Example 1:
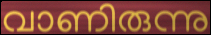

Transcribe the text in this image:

വാണിരുന്നു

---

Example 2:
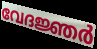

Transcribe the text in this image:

വേദജ്ഞർ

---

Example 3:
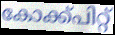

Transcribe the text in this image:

കോക്ക്പിറ്റ്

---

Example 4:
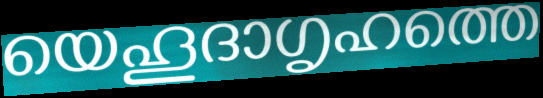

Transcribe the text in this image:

യെഹൂദാഗൃഹത്തെ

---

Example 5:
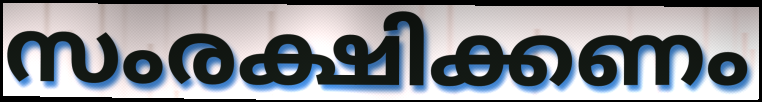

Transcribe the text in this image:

സംരക്ഷിക്കണം